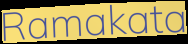
Ramakata